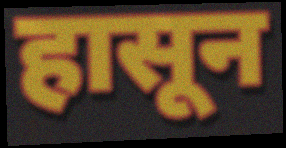
हासून